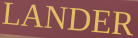
LANDER